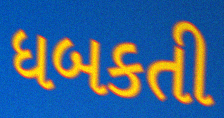
ધબકતી